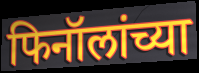
फिनॉलांच्या